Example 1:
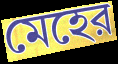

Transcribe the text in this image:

মেহের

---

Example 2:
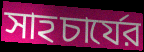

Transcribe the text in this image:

সাহচার্যের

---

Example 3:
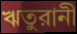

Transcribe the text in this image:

ঋতুরানী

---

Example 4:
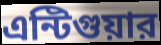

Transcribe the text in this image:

এন্টিগুয়ার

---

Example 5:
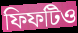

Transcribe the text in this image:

ফিফটিও